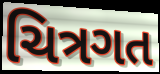
ચિત્રગત